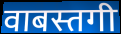
वाबस्तगी